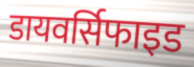
डायवर्सिफाइड